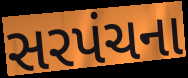
સરપંચના